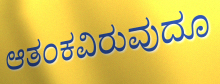
ಆತಂಕವಿರುವುದೂ